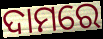
ଦାମରେ